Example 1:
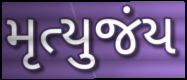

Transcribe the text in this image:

મૃત્યુજંય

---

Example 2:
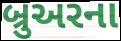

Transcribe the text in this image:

બ્રુઅરના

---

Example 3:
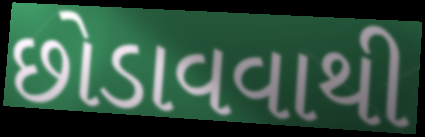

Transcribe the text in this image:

છોડાવવાથી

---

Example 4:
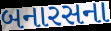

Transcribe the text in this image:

બનારસના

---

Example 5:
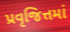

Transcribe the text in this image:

પ્રવૃજિત્તમાં